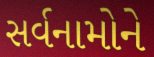
સર્વનામોને